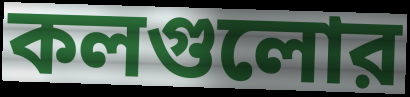
কলগুলোর